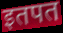
इतपत